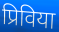
प्रिविया